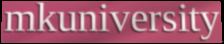
mkuniversity